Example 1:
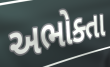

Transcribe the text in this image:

અભોક્તા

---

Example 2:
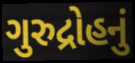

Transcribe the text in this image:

ગુરુદ્રોહનું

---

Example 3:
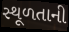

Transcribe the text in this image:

સ્થૂળતાની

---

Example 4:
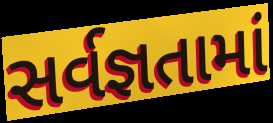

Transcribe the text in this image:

સર્વજ્ઞતામાં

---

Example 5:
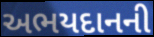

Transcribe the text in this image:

અભયદાનની